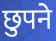
छुपने